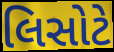
લિસોટે